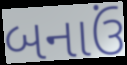
બનાઉં